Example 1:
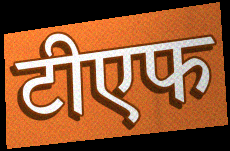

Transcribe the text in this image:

टीएफ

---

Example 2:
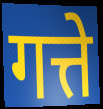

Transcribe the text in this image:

गत्ते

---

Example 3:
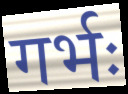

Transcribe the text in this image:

गर्भः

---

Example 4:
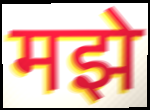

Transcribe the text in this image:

मझे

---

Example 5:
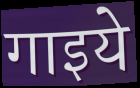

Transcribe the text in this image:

गाइये